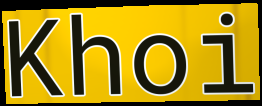
Khoi